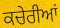
ਕਚੇਰੀਆਂ